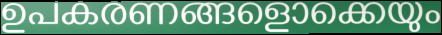
ഉപകരണങ്ങളൊക്കെയും